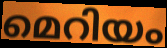
മെറിയം